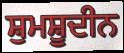
ਸ਼ੁਮਸ਼ੂਦੀਨ